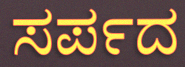
ಸರ್ಪದ